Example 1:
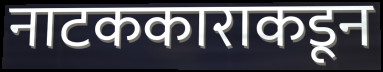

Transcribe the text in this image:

नाटककाराकडून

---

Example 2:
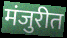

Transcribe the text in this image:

मंजुरीत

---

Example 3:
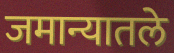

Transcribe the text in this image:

जमान्यातले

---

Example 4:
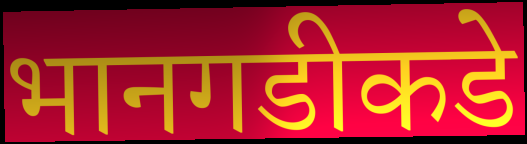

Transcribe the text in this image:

भानगडीकडे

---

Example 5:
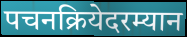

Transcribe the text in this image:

पचनक्रियेदरम्यान